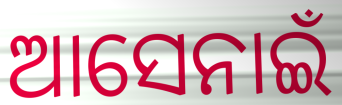
ଆସେନାଇଁ